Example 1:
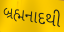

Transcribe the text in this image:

બ્રહ્મનાદથી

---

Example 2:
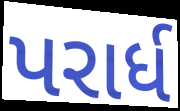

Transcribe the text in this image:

પરાર્ધ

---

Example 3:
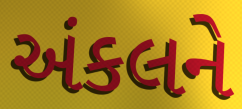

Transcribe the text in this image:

અંકલને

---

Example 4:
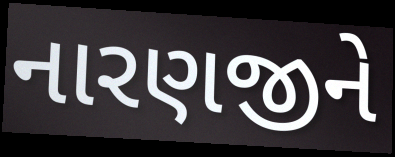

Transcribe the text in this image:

નારણજીને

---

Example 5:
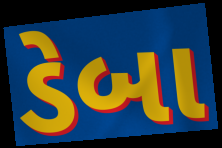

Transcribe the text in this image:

ડેબા